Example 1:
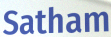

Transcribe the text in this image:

Satham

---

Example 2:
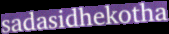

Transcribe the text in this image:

sadasidhekotha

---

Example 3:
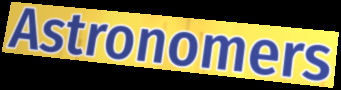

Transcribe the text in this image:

Astronomers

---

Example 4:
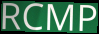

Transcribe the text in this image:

RCMP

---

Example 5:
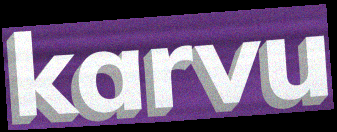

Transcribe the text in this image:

karvu